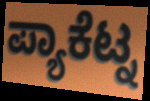
ಪ್ಯಾಕೆಟ್ನ